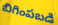
బిగింపబడి